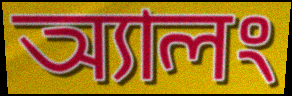
অ্যালং